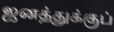
ஜனத்துக்குப்